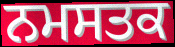
ਨਮਸਤਕ